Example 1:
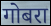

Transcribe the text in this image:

गोबरा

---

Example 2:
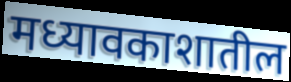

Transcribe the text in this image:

मध्यावकाशातील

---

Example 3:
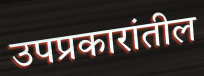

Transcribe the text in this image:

उपप्रकारांतील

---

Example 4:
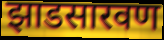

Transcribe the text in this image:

झाडसारवण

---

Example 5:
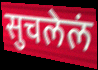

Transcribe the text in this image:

सुचलेलं